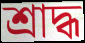
শ্ৰাদ্ধ